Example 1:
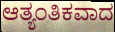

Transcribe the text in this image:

ಆತ್ಯಂತಿಕವಾದ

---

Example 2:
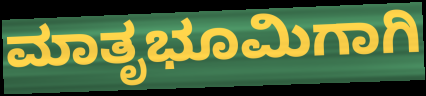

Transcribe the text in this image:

ಮಾತೃಭೂಮಿಗಾಗಿ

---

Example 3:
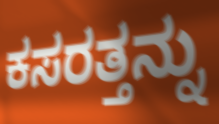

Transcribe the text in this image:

ಕಸರತ್ತನ್ನು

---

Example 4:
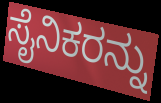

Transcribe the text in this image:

ಸೈನಿಕರನ್ನು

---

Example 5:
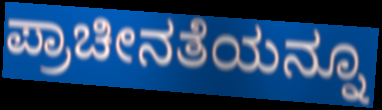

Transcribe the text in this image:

ಪ್ರಾಚೀನತೆಯನ್ನೂ